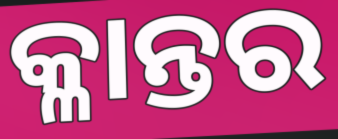
କ୍ଳାନ୍ତର